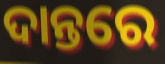
ଦାନ୍ତରେ